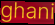
ghani